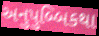
અનુપુબ્બિકથા